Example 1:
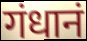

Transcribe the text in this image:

गंधानं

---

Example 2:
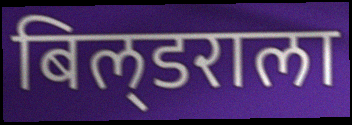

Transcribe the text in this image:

बिल्डराला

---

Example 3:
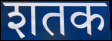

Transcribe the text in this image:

शतक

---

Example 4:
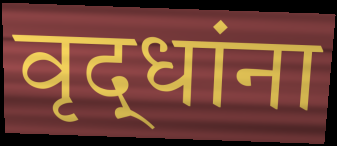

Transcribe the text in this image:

वृद्धांना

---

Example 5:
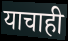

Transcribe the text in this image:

याचाही